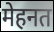
मेहनत